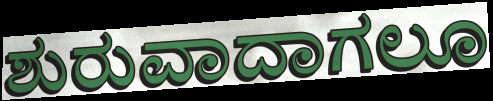
ಶುರುವಾದಾಗಲೂ